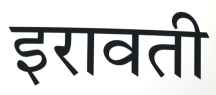
इरावती